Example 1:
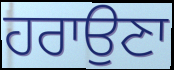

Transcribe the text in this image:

ਹਰਾਉਣਾ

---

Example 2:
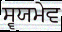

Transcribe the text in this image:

ਸ੍ਵਯਮੇਵ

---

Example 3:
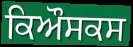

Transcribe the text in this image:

ਕਿਔਸਕਸ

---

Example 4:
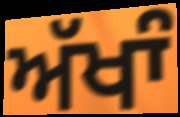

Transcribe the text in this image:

ਅੱਖਾੰ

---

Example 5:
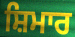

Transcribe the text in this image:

ਸ਼ਿਮਾਰ